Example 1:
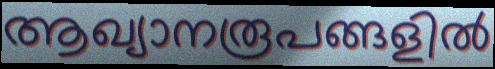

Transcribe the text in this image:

ആഖ്യാനരൂപങ്ങളിൽ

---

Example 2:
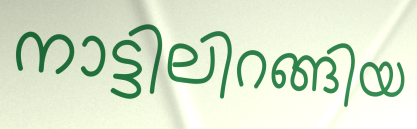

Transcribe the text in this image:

നാട്ടിലിറങ്ങിയ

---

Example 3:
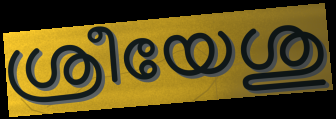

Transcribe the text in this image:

ശ്രീയേശു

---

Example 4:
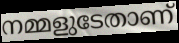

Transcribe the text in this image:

നമ്മളുടേതാണ്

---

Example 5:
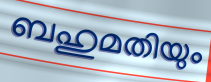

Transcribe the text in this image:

ബഹുമതിയും